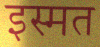
इस्मत